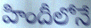
హిందీలోనే